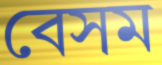
বেসম